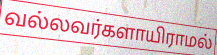
வல்லவர்களாயிராமல்